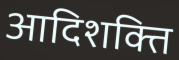
आदिशक्ति